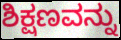
ಶಿಕ್ಷಣವನ್ನು